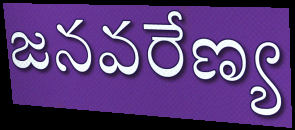
జనవరేణ్య